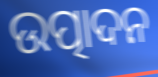
ଉତ୍ପାଦନ